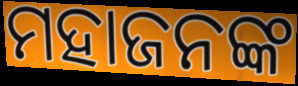
ମହାଜନଙ୍କ